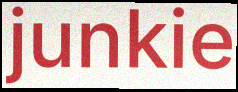
junkie